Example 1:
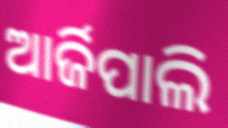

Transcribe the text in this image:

ଆର୍ଜିପାଲି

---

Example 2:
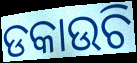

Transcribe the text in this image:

ଡକାଉଚି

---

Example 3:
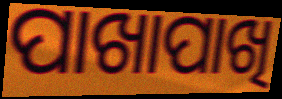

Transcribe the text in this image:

ପାଖାପାଖି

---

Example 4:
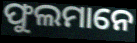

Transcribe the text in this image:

ଫୁଲମାନେ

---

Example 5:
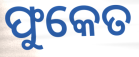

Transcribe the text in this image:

ଫୁକେତ